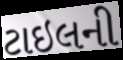
ટાઇલની